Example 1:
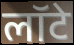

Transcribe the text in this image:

लॉटे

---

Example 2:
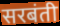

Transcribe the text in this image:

सरबंती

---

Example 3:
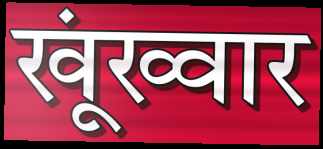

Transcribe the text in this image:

खूंख्वार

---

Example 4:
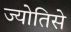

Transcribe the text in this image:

ज्योतिसे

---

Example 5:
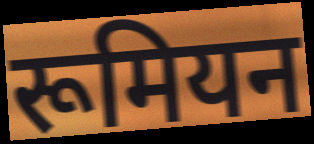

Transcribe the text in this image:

रूमियन